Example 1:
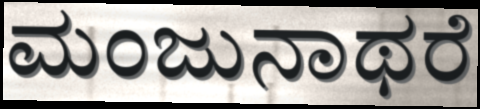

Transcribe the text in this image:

ಮಂಜುನಾಥರೆ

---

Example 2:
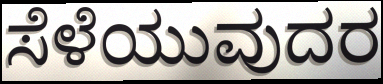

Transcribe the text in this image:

ಸೆಳೆಯುವುದರ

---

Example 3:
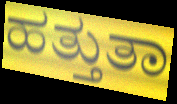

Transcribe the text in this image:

ಹತ್ತುತಾ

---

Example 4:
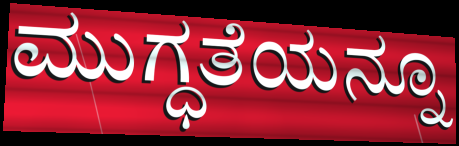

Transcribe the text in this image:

ಮುಗ್ಧತೆಯನ್ನೂ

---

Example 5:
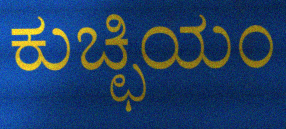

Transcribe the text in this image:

ಕುಚ್ಛಿಯಂ